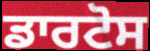
ਡਾਰਟੋਸ